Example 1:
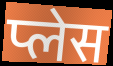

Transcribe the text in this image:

प्लेस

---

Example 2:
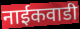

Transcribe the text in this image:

नाईकवाडी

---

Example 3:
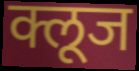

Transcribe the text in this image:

क्लूज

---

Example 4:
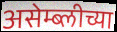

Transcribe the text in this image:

असेम्ब्लीच्या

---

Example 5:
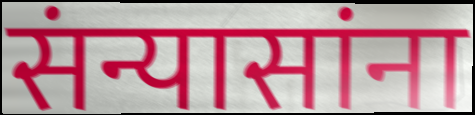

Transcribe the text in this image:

संन्यासांना